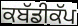
ਕਬੱਡੀਕੱਪ